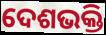
ଦେଶଭକ୍ତି